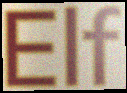
Elf